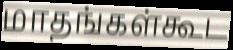
மாதங்கள்கூட